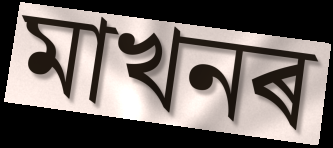
মাখনৰ